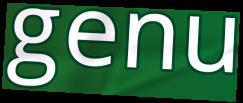
genu